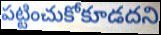
పట్టించుకోకూడదని